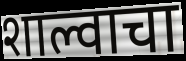
शाल्वाचा